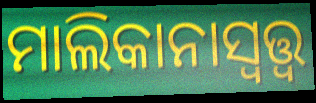
ମାଲିକାନାସ୍ୱତ୍ତ୍ୱ